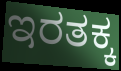
ಇರತಕ್ಕ